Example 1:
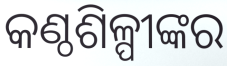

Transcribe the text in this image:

କଣ୍ଠଶିଳ୍ପୀଙ୍କର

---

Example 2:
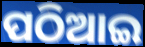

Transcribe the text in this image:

ପଠିଆଇ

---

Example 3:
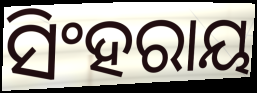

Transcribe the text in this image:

ସିଂହରାୟ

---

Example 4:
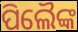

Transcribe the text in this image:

ପିଲୈଙ୍କ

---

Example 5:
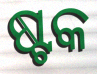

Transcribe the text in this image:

ଷ୍ଟକ